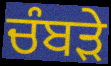
ਚੰਬੜੇ